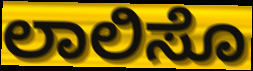
ಲಾಲಿಸೊ